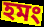
হমং